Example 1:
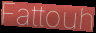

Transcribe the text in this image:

Fattouh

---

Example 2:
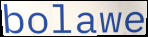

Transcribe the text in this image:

bolawe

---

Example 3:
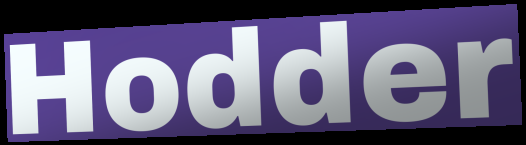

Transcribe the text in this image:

Hodder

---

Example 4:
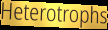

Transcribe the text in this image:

Heterotrophs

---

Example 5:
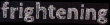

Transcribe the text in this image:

frightening